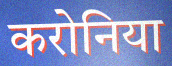
करोनिया